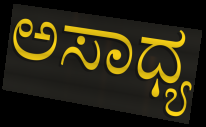
ಅಸಾಧ್ಯ